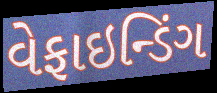
વેફાઇન્ડિંગ